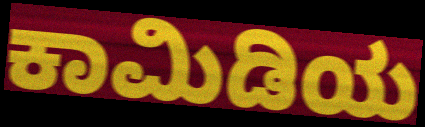
ಕಾಮಿಡಿಯ